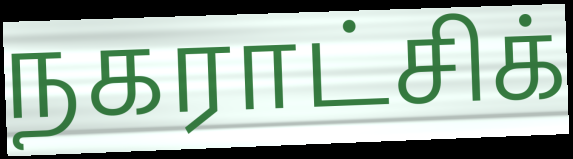
நகராட்சிக்